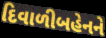
દિવાળીબહેનને